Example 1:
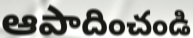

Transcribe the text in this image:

ఆపాదించండి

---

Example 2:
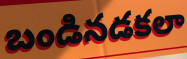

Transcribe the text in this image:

బండినడకలా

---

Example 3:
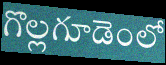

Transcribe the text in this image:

గొల్లగూడెంలో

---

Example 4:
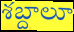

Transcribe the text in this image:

శబ్దాలూ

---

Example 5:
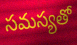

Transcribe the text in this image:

సమస్యతో